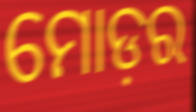
ମୋଡ଼ର